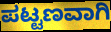
ಪಟ್ಟಣವಾಗಿ